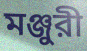
মঞ্জুরী